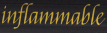
inflammable